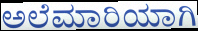
ಅಲೆಮಾರಿಯಾಗಿ